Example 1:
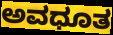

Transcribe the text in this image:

ಅವಧೂತ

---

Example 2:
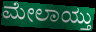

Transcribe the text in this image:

ಮೇಲಾಯ್ತು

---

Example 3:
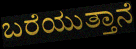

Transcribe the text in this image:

ಬರೆಯುತ್ತಾನೆ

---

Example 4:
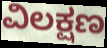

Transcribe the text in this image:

ವಿಲಕ್ಷಣ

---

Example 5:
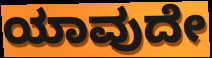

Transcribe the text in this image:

ಯಾವುದೇ